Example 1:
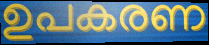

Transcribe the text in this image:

ഉപകരണ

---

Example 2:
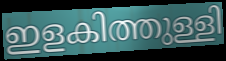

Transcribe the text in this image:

ഇളകിത്തുള്ളി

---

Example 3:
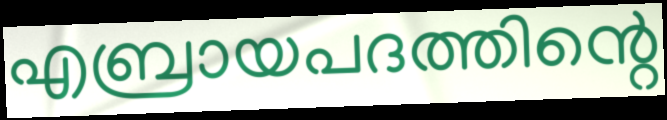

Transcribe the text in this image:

എബ്രായപദത്തിന്റെ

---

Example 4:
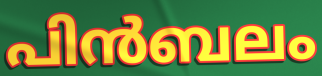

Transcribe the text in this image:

പിൻബലം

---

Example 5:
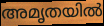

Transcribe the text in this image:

അമൃതയിൽ